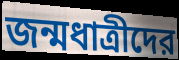
জন্মধাত্রীদের